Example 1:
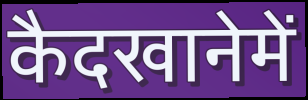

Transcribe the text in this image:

कैदखानेमें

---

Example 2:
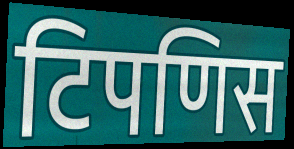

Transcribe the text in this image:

टिपणिस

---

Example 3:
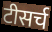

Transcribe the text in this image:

टीसर्च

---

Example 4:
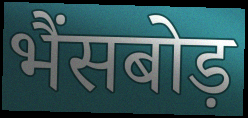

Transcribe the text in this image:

भैंसबोड़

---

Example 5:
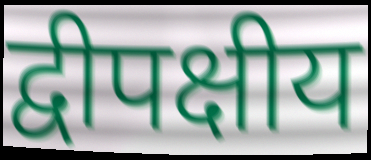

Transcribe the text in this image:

द्वीपक्षीय